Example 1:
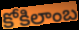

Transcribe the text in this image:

కోకిలాంబ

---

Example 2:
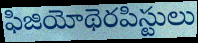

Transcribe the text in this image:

ఫిజియోథెరపిస్టులు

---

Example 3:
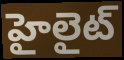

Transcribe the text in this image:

హైలైట్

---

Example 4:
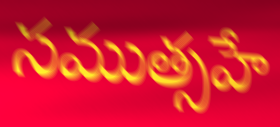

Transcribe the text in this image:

సముత్సహే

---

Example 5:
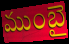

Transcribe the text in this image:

ముంబై